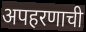
अपहरणाची